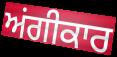
ਅਂਗੀਕਾਰ